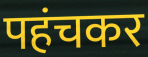
पहंचकर